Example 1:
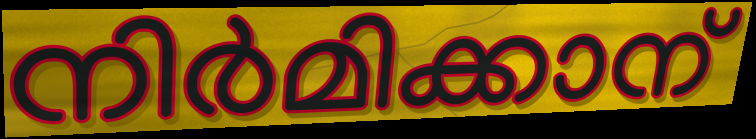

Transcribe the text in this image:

നിർമിക്കാന്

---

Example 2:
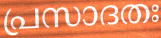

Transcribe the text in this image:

പ്രസാദതഃ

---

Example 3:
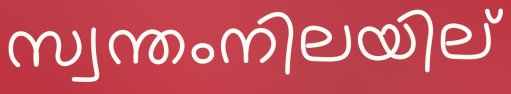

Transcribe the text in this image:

സ്വന്തംനിലയില്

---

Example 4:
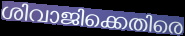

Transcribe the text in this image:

ശിവാജിക്കെതിരെ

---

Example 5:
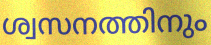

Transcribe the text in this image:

ശ്വസനത്തിനും